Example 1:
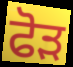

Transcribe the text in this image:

ਫੋਡ਼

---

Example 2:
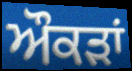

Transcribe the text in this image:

ਔਕਡ਼ਾਂ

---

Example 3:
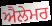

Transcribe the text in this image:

ਐਲੇਮਰ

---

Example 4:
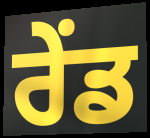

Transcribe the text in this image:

ਰੇਂਡ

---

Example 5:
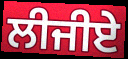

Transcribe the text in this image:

ਲੀਜੀਏ